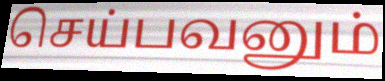
செய்பவனும்